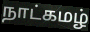
நாட்கமழ்